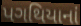
પગથિયાનાં